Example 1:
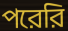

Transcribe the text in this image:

পরেরি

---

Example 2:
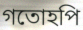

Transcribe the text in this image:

গতোহপি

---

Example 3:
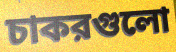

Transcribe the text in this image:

চাকরগুলো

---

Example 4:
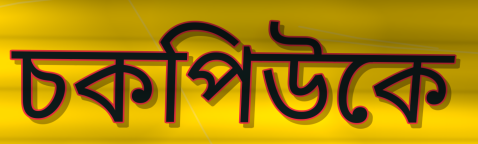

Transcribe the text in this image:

চকপিউকে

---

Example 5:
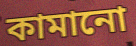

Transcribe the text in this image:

কামানো